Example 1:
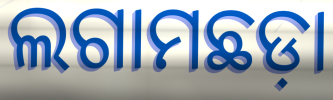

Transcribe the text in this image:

ଲଗାମଛଡ଼ା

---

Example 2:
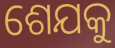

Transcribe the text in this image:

ଶେଯକୁ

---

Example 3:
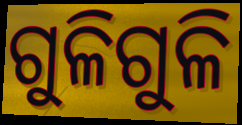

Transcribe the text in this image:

ଗୁଳିଗୁଳି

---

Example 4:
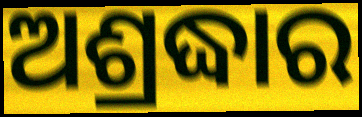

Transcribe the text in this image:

ଅଶ୍ରଦ୍ଧାର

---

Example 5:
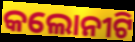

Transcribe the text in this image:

କଲୋନୀଟି